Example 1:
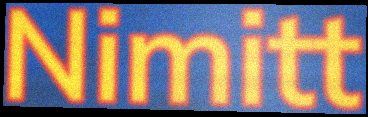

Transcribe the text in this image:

Nimitt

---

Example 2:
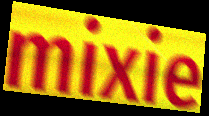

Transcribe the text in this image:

mixie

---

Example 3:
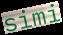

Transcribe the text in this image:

simi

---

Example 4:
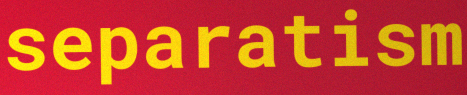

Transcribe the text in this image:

separatism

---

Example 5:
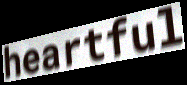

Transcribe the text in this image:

heartful